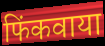
फिंकवाया